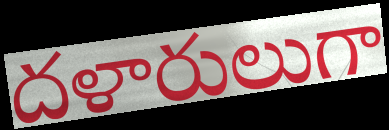
దళారులుగా